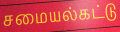
சமையல்கட்டு